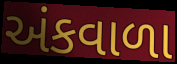
અંકવાળા